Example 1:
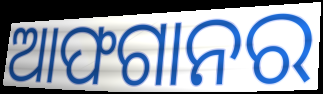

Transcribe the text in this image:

ଆଫଗାନର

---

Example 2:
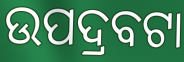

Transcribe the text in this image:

ଉପଦ୍ରବଟା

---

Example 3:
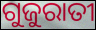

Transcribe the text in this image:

ଗୁଜୁରାତୀ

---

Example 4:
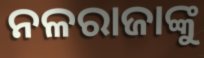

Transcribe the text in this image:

ନଳରାଜାଙ୍କୁ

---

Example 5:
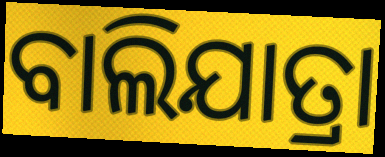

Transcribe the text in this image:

ବାଲିଯାତ୍ରା